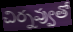
చిర్నవ్వుతో